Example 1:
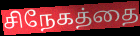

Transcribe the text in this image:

சிநேகத்தை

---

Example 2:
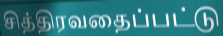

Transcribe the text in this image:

சித்திரவதைப்பட்டு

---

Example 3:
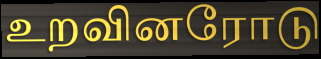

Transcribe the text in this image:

உறவினரோடு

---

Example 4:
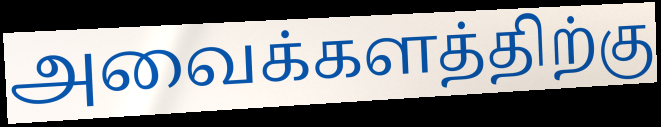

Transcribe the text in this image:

அவைக்களத்திற்கு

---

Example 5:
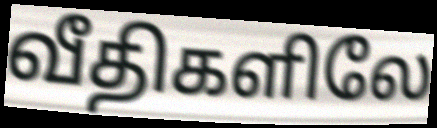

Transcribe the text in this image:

வீதிகளிலே